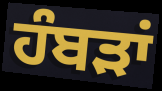
ਹੰਬੜਾਂ